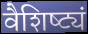
वैशिष्ट्यं